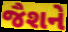
જૈશને